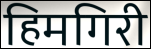
हिमगिरी